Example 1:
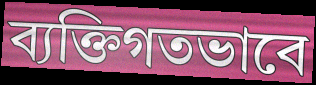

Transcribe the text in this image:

ব্যক্তিগতভাবে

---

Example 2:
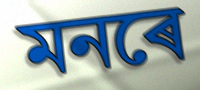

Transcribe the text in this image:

মনৰে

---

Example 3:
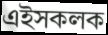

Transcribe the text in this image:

এইসকলক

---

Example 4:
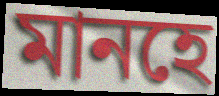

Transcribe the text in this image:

মানহে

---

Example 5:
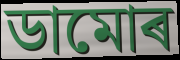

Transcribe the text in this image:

ডামোৰ